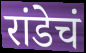
रांडेचं